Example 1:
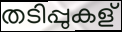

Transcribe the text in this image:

തടിപ്പുകള്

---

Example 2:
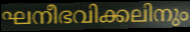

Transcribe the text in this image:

ഘനീഭവിക്കലിനും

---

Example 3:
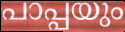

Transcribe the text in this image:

പാപ്പയും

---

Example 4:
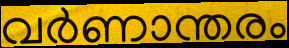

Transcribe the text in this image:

വർണാന്തരം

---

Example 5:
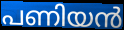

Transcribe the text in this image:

പണിയൻ